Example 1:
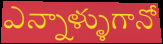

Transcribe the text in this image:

ఎన్నాళ్ళుగానో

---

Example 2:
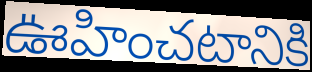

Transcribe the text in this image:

ఊహించటానికి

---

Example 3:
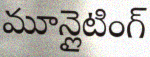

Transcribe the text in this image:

మూన్లైటింగ్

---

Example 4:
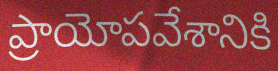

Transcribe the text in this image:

ప్రాయోపవేశానికి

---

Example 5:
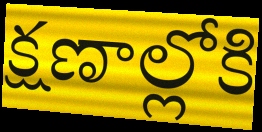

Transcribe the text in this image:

క్షణాల్లోకి